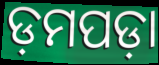
ଡ଼ମପଡ଼ା